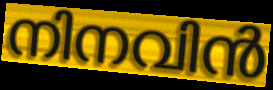
നിനവിൻ